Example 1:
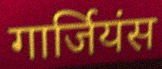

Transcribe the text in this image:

गार्जियंस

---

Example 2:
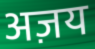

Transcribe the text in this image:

अज़य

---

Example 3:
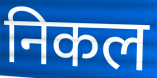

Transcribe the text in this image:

निकल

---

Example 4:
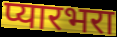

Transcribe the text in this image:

प्यारभरा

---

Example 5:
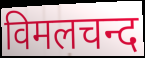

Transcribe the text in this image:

विमलचन्द